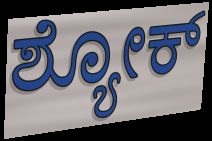
ಶ್ಯೋಕ್